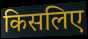
किसलिए